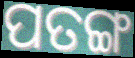
ପତଙ୍ଗ